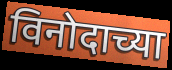
विनोदाच्या